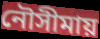
নৌসীমায়